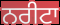
ਨਰੀਟਾ